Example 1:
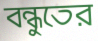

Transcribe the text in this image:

বন্ধুতের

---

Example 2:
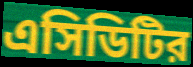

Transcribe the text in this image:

এসিডিটির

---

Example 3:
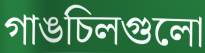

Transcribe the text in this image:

গাঙচিলগুলো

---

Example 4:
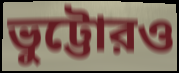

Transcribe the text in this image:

ভুট্টোরও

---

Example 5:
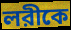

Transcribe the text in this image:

লরীকে